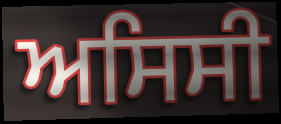
ਅਸਿਸੀ